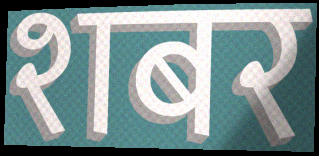
शबर